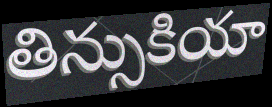
తిన్సుకియా